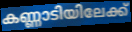
കണ്ണാടിയിലേക്ക്